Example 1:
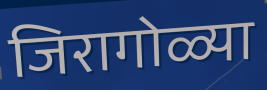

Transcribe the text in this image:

जिरागोळ्या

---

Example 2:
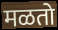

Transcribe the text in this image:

मळतो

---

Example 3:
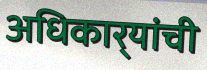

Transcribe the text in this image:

अधिकार्‍यांची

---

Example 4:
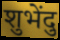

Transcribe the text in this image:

शुभेंदु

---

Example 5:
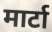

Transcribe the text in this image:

मार्टा